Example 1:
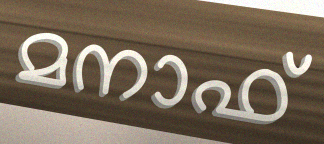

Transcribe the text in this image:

മനാഫ്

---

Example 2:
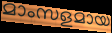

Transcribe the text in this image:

മാംസളമായ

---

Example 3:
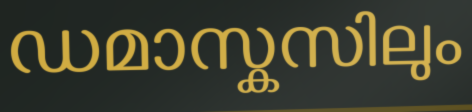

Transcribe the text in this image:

ഡമാസ്കസിലും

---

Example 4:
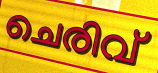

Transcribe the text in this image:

ചെരിവ്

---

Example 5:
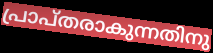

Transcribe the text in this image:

പ്രാപ്തരാകുന്നതിനു